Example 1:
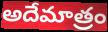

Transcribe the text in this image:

అదేమాత్రం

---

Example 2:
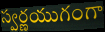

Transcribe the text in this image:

స్వర్ణయుగంగా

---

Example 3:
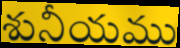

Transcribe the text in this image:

శునీయము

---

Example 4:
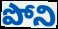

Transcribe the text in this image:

పోని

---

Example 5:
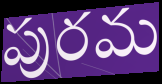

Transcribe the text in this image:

పురమ